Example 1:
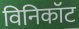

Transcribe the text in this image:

विनिकॉट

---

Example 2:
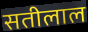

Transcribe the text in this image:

सतीलाल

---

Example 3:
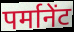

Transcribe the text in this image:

पर्मानेंट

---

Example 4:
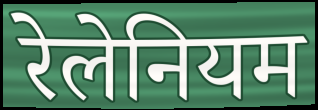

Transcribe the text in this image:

रेलेनियम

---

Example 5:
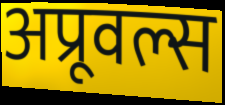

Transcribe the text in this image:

अप्रूवल्स